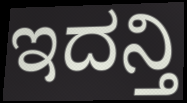
ಇದನ್ತಿ